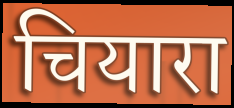
चियारा